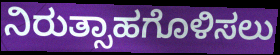
ನಿರುತ್ಸಾಹಗೊಳಿಸಲು